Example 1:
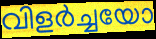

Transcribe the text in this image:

വിളർച്ചയോ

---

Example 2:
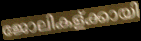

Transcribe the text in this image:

ജോലികള്ക്കായി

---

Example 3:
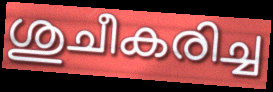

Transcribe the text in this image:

ശുചീകരിച്ച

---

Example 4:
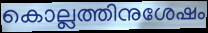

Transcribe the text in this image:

കൊല്ലത്തിനുശേഷം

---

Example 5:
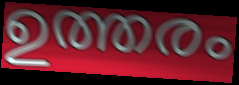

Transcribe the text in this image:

ഉത്തരം